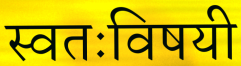
स्वतःविषयी